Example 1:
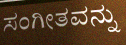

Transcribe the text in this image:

ಸಂಗೀತವನ್ನು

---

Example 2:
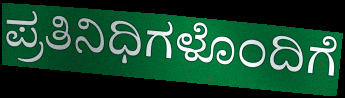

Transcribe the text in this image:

ಪ್ರತಿನಿಧಿಗಳೊಂದಿಗೆ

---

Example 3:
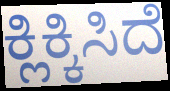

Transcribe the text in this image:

ಕ್ಲಿಕ್ಕಿಸಿದೆ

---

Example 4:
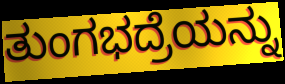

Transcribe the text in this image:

ತುಂಗಭದ್ರೆಯನ್ನು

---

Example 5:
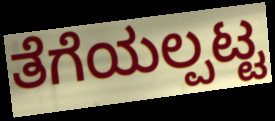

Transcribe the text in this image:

ತೆಗೆಯಲ್ಪಟ್ಟ